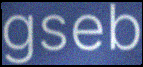
gseb